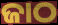
ଜାଠ